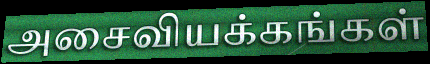
அசைவியக்கங்கள்